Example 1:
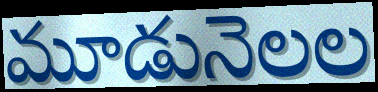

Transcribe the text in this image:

మూడునెలల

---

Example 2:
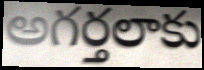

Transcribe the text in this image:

అగర్తలాకు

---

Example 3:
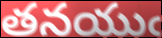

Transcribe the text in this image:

తనయుఁ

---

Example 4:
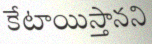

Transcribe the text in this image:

కేటాయిస్తానని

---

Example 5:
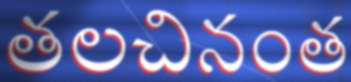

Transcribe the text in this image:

తలచినంత